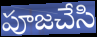
పూజచేసి